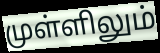
முள்ளிலும்